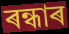
ৰন্ধাৰ